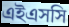
এইএসসি